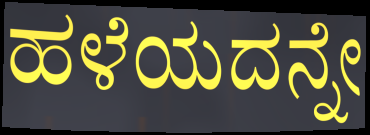
ಹಳೆಯದನ್ನೇ